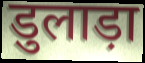
डुलाड़ा